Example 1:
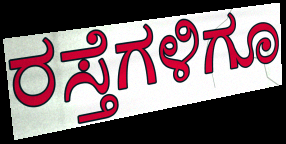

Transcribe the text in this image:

ರಸ್ತೆಗಳಿಗೂ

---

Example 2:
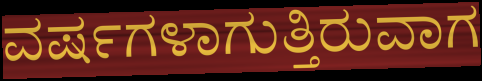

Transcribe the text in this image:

ವರ್ಷಗಳಾಗುತ್ತಿರುವಾಗ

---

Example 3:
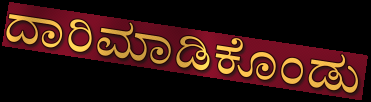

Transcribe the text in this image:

ದಾರಿಮಾಡಿಕೊಂಡು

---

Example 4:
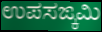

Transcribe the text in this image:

ಉಪಸಙ್ಕಮಿ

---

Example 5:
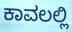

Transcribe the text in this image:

ಕಾವಲಲ್ಲಿ